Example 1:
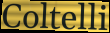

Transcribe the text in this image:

Coltelli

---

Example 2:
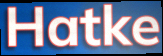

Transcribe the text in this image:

Hatke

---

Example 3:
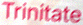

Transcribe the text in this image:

Trinitate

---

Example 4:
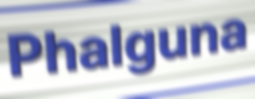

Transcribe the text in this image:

Phalguna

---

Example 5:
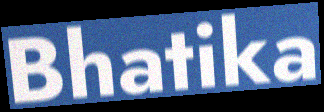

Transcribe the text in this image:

Bhatika